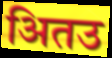
अितउ